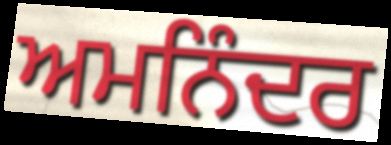
ਅਮਨਿੰਦਰ